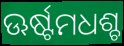
ଊର୍ଷ୍ଟମଧଶ୍ଚ